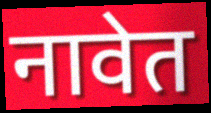
नावेत